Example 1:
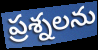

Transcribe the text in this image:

ప్రశ్నలను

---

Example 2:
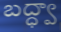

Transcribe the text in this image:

బద్ధ్వా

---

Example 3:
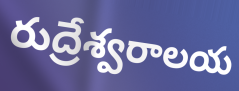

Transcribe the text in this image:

రుద్రేశ్వరాలయ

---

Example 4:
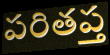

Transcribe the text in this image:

పరితప్త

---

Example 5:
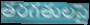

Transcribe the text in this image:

తరగతులపై